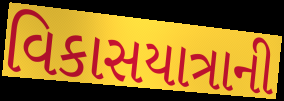
વિકાસયાત્રાની